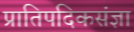
प्रातिपदिकसंज्ञा